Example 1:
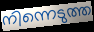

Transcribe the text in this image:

നിന്നെടുത്ത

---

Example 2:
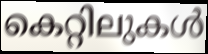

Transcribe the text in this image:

കെറ്റിലുകൾ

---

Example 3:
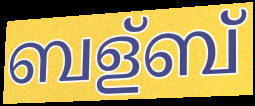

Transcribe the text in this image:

ബള്ബ്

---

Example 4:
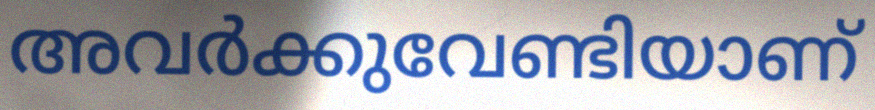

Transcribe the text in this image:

അവർക്കുവേണ്ടിയാണ്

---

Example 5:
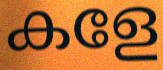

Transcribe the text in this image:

കളേ